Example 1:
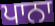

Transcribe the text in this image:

ਪਾਨਾ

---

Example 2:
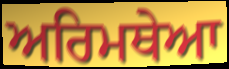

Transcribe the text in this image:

ਅਰਿਮਥੇਆ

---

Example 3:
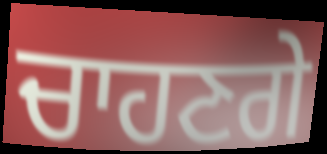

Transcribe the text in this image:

ਚਾਹਣਗੇ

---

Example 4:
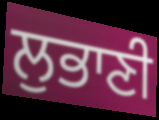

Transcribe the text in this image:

ਲੁਭਾਣੀ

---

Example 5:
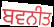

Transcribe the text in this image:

ਬਵਨੀਤ